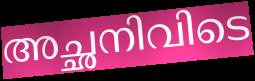
അച്ഛനിവിടെ